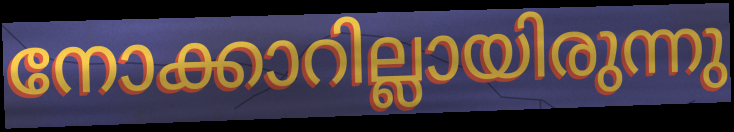
നോക്കാറില്ലായിരുന്നു